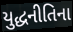
યુદ્ધનીતિના